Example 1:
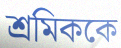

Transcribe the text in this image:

শ্রমিককে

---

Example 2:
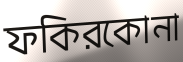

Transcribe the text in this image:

ফকিরকোনা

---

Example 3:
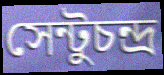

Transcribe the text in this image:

সেন্টুচন্দ্র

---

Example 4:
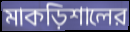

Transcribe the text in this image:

মাকড়িশালের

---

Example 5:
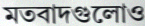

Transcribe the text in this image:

মতবাদগুলোও